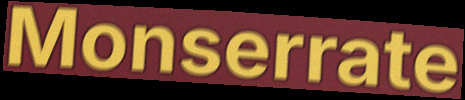
Monserrate